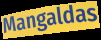
Mangaldas